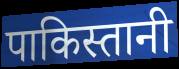
पाकिस्तानी